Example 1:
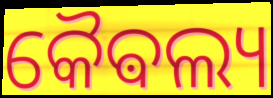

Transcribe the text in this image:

କୈଵଲ୍ୟ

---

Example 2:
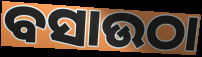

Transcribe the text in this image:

ବସାଉଠା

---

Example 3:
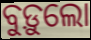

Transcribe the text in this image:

ବୁଡ଼ୁଲୋ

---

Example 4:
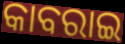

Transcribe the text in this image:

କାବରାଇ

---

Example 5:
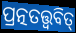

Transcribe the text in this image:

ପ୍ରତ୍ନତତ୍ତ୍ଵବିତ୍